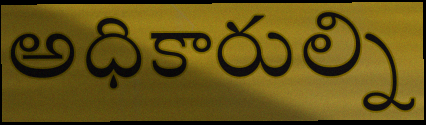
అధికారుల్ని